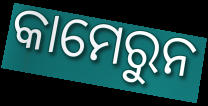
କାମେରୁନ